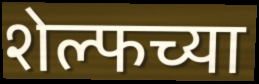
शेल्फच्या